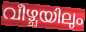
വീഴ്ചയിലും